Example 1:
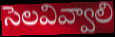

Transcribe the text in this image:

సెలవివ్వాలి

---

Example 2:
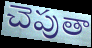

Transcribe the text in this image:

చెపుతా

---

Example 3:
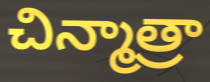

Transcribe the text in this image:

చిన్మాత్రా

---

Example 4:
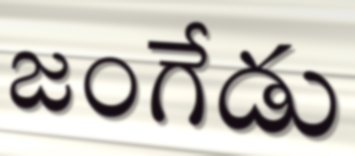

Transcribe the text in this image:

జంగేడు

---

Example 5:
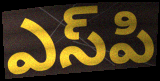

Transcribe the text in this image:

ఎస్‌పి